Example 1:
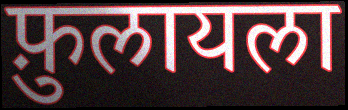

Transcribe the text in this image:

फ़ुलायला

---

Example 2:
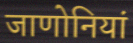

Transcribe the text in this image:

जाणोनियां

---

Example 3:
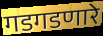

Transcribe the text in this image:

गडगडणारे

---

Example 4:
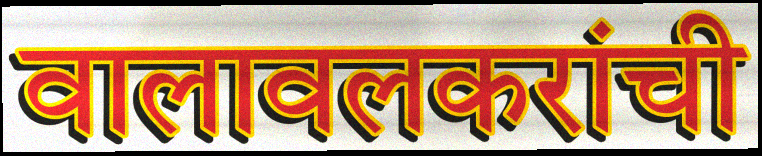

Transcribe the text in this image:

वालावलकरांची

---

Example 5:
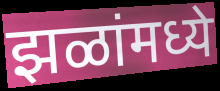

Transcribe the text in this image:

झळांमध्ये